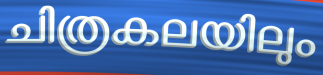
ചിത്രകലയിലും